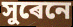
সুৰেনে